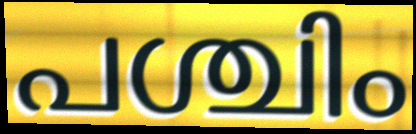
പശ്ചിം